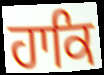
ਹਾਕਿ